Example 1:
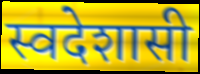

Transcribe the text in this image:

स्वदेशासी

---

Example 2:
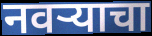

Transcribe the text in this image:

नवऱ्याचा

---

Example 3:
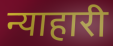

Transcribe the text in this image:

न्याहारी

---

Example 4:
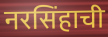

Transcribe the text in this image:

नरसिंहाची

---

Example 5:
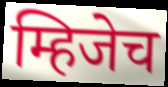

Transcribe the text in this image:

म्हिजेच